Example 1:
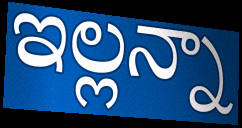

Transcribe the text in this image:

ఇల్లన్నా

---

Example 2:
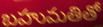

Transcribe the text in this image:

బహుమతితో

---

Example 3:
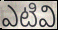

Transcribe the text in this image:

ఎటివి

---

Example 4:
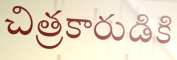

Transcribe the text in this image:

చిత్రకారుడికి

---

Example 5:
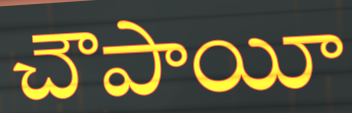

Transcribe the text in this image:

చౌపాయీ